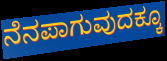
ನೆನಪಾಗುವುದಕ್ಕೂ